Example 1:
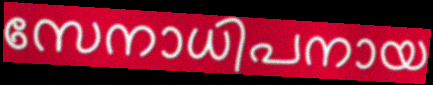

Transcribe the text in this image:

സേനാധിപനായ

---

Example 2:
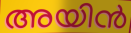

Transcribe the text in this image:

അയിൻ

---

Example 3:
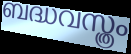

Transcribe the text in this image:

ബദ്ധവസ്ത്രം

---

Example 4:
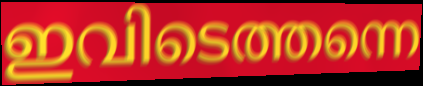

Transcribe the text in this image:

ഇവിടെത്തന്നെ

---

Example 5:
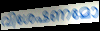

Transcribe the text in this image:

വിശേഷണമോ